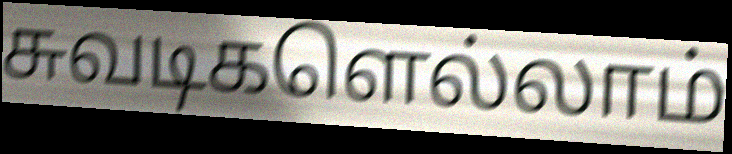
சுவடிகளெல்லாம்